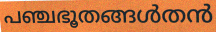
പഞ്ചഭൂതങ്ങൾതൻ